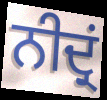
ਨੀਦ੍ਰਂ